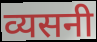
व्यसनी